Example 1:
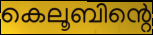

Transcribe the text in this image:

കെലൂബിന്റെ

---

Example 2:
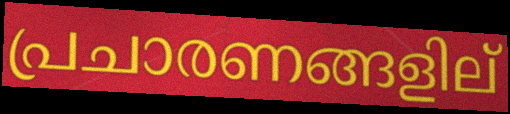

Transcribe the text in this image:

പ്രചാരണങ്ങളില്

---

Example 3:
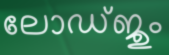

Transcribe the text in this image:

ലോഡ്ജും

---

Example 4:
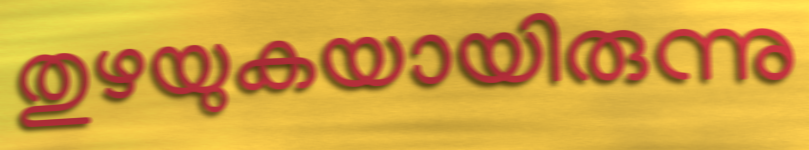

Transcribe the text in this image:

തുഴയുകയായിരുന്നു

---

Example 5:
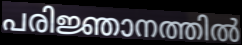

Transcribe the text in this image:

പരിജ്ഞാനത്തിൽ